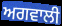
ਅਗਵਾਲੀ